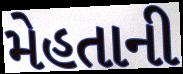
મેહતાની